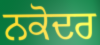
ਨਕੋਦਰ